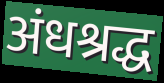
अंधश्रद्ध